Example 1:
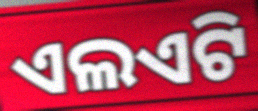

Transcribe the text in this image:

ଏଲଏଟି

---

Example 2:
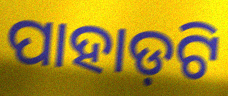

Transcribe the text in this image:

ପାହାଡ଼ଟି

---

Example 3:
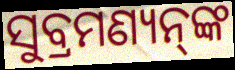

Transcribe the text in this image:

ସୁବ୍ରମଣ୍ୟନ୍‌ଙ୍କ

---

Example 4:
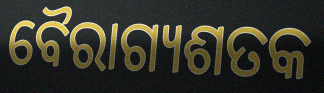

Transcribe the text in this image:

ବୈରାଗ୍ୟଶତକ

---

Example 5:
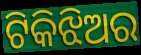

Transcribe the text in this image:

ଟିକିଝିଅର